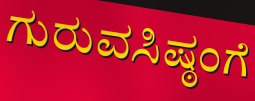
ಗುರುವಸಿಷ್ಠಂಗೆ